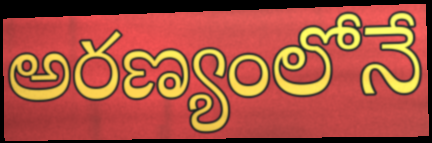
అరణ్యంలోనే